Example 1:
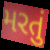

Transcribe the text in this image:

મરતું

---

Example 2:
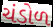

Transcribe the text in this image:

ચંડોળ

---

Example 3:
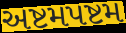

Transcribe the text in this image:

અષ્ટમપષ્ટમ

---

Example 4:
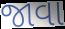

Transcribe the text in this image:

જાવા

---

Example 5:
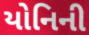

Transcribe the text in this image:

યોનિની